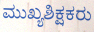
ಮುಖ್ಯಶಿಕ್ಷಕರು